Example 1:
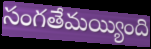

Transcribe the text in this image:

సంగతేమయ్యింది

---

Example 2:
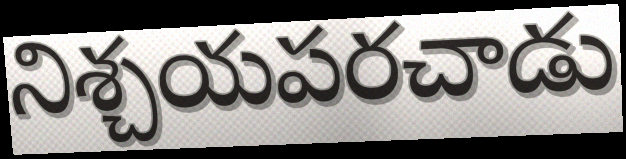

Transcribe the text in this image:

నిశ్చయపరచాడు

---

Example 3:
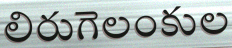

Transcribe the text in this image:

లిరుగెలంకుల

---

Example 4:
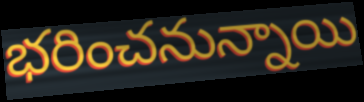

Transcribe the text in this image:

భరించనున్నాయి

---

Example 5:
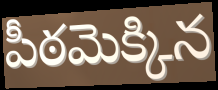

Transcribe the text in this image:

పీఠమెక్కిన